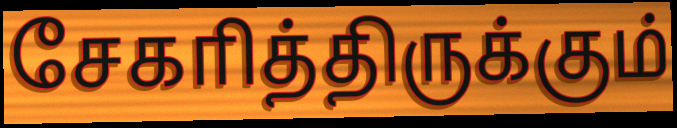
சேகரித்திருக்கும்